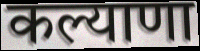
कल्याणा